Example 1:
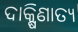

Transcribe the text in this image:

ଦାକ୍ଷିଣାତ୍ୟ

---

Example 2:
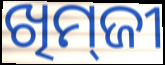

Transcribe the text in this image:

ଖିମ୍‌ଜୀ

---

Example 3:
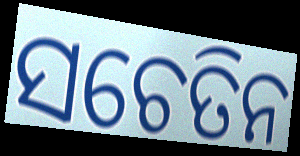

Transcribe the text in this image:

ସଚେତିନ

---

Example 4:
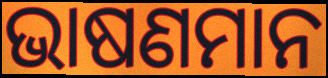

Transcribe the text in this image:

ଭାଷଣମାନ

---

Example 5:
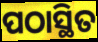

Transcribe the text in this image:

ପଠାସ୍ଥିତ